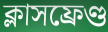
ক্লাসফ্রেণ্ড